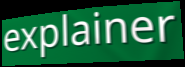
explainer